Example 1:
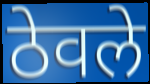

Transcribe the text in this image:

ठेवले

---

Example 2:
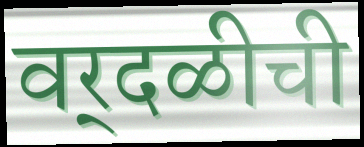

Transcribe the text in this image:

वर्दळीची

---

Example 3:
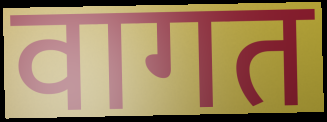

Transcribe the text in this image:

वागत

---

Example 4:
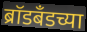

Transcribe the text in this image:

ब्रॉडबँडच्या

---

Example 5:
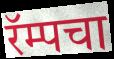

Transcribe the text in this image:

रॅम्पचा